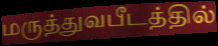
மருத்துவபீடத்தில்